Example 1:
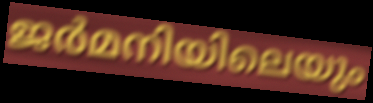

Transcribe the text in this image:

ജർമനിയിലെയും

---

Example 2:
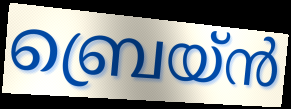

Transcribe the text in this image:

ബ്രെയ്ൻ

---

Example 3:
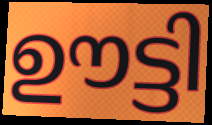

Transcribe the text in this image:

ഊട്ടി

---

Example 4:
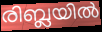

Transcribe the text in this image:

രിബ്ലയിൽ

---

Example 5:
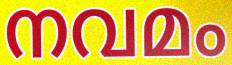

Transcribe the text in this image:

നവമം